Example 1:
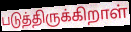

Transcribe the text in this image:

படுத்திருக்கிறாள்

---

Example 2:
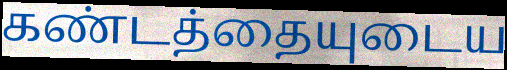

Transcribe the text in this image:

கண்டத்தையுடைய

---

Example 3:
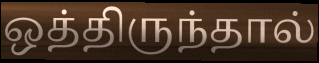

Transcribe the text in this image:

ஒத்திருந்தால்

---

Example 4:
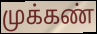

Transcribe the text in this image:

முக்கண்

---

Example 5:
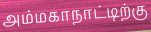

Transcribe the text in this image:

அம்மகாநாட்டிற்கு